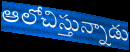
ఆలోచిస్తున్నాడు